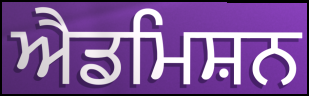
ਐਡਮਿਸ਼ਨ